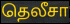
தெலீசா